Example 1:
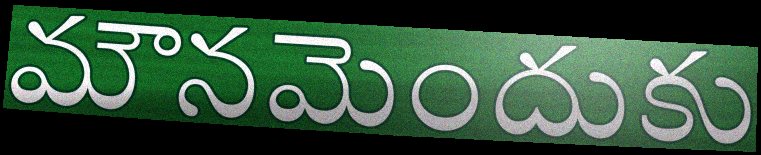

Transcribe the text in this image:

మౌనమెందుకు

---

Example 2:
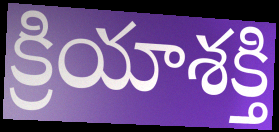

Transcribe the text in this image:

క్రియాశక్తి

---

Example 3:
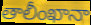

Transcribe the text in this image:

తాలీంఖానా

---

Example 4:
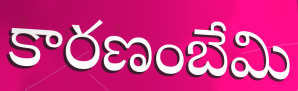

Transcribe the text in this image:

కారణంబేమి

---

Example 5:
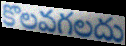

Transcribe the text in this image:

కొలవగలదు